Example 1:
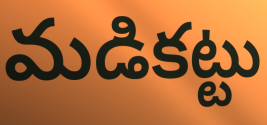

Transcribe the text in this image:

మడికట్టు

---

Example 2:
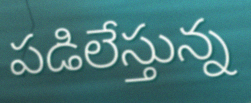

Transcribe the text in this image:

పడిలేస్తున్న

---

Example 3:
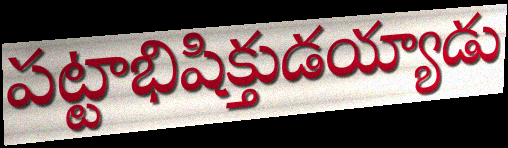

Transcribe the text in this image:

పట్టాభిషిక్తుడయ్యాడు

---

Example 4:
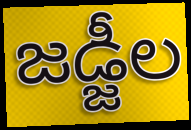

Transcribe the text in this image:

జడ్జీల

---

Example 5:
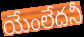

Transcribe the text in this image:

యేంలేదనీ